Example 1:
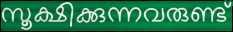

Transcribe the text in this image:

സൂക്ഷിക്കുന്നവരുണ്ട്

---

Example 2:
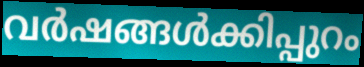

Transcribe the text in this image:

വർഷങ്ങൾക്കിപ്പുറം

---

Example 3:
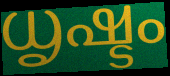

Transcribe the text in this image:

ധൃഷ്ടം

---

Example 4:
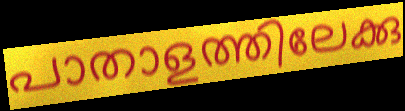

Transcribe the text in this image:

പാതാളത്തിലേക്കു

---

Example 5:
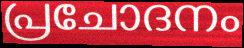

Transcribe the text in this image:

പ്രചോദനം